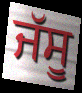
ਜੱਸੂ